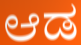
ಆಡ